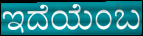
ಇದೆಯೆಂಬ